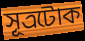
সূত্ৰটোক